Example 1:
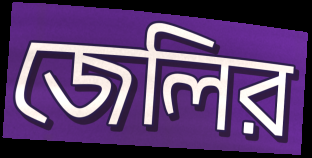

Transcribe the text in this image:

জেলির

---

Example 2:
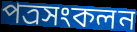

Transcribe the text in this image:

পত্রসংকলন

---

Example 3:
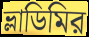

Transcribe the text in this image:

ভ্লাডিমির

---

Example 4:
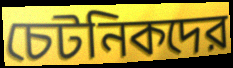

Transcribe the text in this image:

চেটনিকদের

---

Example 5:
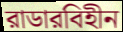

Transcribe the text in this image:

রাডারবিহীন